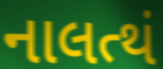
નાલત્થં